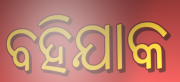
ବହିଯାକ